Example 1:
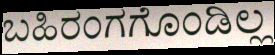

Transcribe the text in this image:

ಬಹಿರಂಗಗೊಂಡಿಲ್ಲ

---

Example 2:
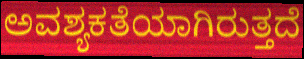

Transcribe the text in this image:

ಅವಶ್ಯಕತೆಯಾಗಿರುತ್ತದೆ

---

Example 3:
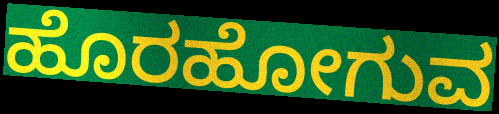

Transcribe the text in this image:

ಹೊರಹೋಗುವ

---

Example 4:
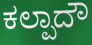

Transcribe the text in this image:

ಕಲ್ಪಾದೌ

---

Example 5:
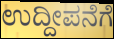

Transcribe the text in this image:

ಉದ್ದೀಪನೆಗೆ